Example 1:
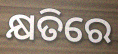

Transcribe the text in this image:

କ୍ଷତିରେ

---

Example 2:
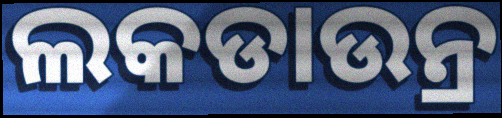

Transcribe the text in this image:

ଲକଡାଉନ୍ର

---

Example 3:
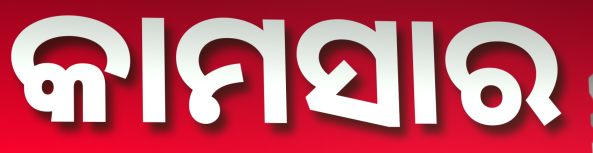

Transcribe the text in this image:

କାମସାର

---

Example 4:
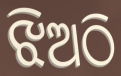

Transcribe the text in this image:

ଝିଅଠି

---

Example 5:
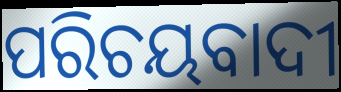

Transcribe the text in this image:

ପରିଚୟବାଦୀ